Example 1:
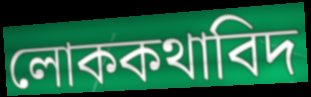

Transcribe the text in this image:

লোককথাবিদ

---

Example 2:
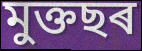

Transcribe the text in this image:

মুক্তছৰ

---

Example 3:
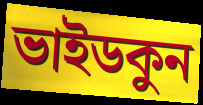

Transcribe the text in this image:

ভাইডকুন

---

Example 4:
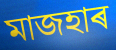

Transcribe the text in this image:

মাজহাৰ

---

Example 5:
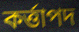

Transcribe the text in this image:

কৰ্ত্তাপদ